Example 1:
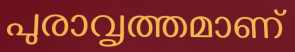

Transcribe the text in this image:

പുരാവൃത്തമാണ്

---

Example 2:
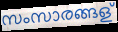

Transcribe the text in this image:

സംസാരങ്ങള്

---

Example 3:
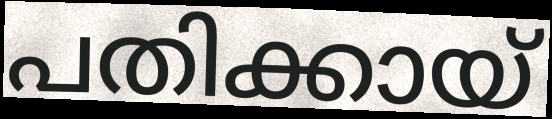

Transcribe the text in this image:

പതിക്കായ്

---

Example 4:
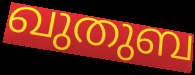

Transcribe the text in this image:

ഖുതുബ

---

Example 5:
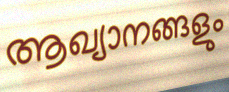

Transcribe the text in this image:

ആഖ്യാനങ്ങളും